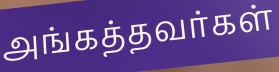
அங்கத்தவர்கள்